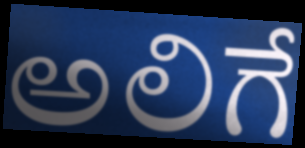
అలిగే